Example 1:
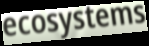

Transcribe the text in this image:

ecosystems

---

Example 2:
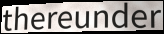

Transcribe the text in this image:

thereunder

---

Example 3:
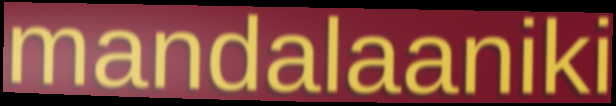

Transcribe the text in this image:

mandalaaniki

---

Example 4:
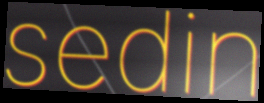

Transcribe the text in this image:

sedin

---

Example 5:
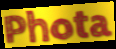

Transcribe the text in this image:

Phota